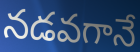
నడవగానే